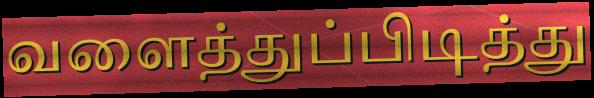
வளைத்துப்பிடித்து